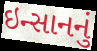
ઇન્સાનનું